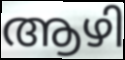
ആഴി